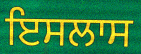
ਇਸਲਾਸ